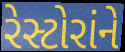
રેસ્ટોરાંને